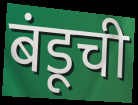
बंडूची